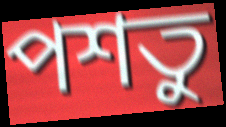
পশতু